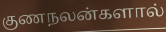
குணநலன்களால்